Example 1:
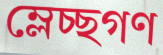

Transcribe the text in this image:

ম্লেচ্ছগণ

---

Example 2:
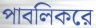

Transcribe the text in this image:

পাবলিকরে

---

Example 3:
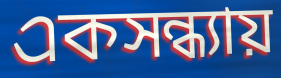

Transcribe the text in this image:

একসন্ধ্যায়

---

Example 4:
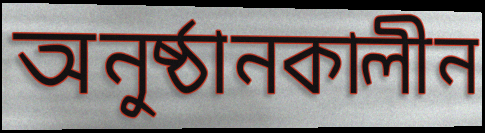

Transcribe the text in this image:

অনুষ্ঠানকালীন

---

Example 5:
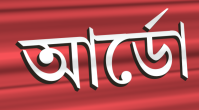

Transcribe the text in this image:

আর্ডো